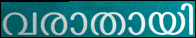
വരാതായി